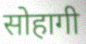
सोहागी